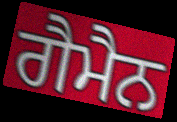
ਗੈਮੈਨ